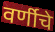
वर्णीचे